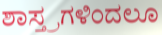
ಶಾಸ್ತ್ರಗಳಿಂದಲೂ